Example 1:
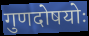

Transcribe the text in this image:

गुणदोषयोः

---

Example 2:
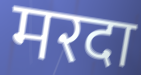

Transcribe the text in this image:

मरदा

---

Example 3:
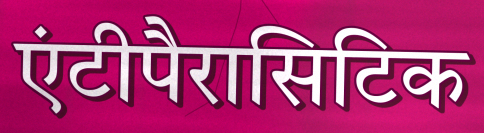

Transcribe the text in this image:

एंटीपैरासिटिक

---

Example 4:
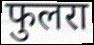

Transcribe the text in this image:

फुलरा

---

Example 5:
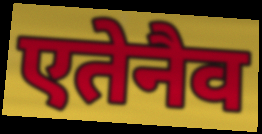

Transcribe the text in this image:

एतेनैव